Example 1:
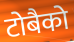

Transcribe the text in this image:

टोबैको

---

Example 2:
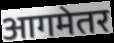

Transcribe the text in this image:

आगमेतर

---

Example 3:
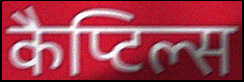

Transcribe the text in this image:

कैप्टिल्स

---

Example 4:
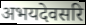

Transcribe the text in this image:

अभयदेवसरि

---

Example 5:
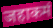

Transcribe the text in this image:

जहाकमं